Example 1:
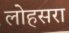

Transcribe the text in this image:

लोहसरा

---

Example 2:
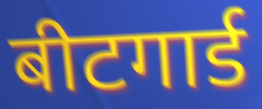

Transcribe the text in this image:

बीटगार्ड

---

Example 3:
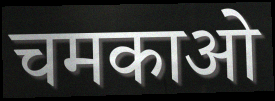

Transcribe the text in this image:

चमकाओ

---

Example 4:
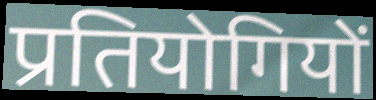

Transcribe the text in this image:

प्रतियोगियों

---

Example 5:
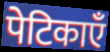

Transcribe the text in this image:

पेटिकाएँ